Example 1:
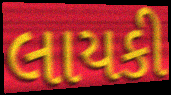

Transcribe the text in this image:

લાયકી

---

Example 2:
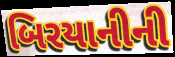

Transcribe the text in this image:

બિરયાનીની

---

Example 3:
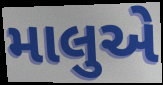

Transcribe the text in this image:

માલુએ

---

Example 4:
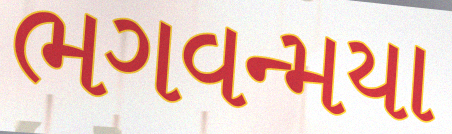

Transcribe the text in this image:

ભગવન્મયા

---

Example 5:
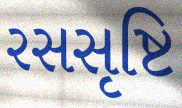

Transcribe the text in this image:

રસસૃષ્ટિ